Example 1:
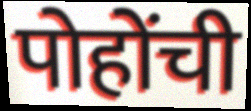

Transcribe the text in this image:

पोहोंची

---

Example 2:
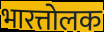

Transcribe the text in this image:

भारत्तोलक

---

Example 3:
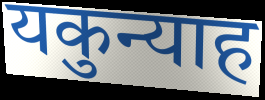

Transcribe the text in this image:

यकुन्याह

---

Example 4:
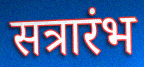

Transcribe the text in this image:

सत्रारंभ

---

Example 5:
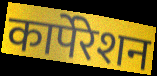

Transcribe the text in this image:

कार्पेरेशन